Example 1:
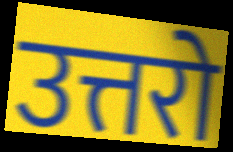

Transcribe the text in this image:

उत्तरो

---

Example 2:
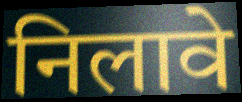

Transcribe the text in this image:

निलावे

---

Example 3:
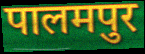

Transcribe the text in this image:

पालमपुर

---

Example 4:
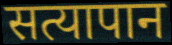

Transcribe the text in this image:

सत्यापान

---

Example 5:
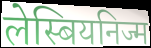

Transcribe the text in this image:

लेस्बियनिज्म